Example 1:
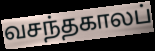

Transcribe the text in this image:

வசந்தகாலப்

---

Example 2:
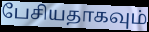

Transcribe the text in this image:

பேசியதாகவும்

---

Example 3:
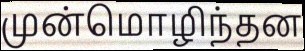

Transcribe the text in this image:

முன்மொழிந்தன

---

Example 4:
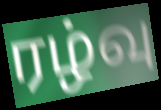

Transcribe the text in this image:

ரழ்வு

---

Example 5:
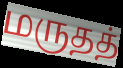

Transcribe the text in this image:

மருதத்